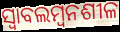
ସ୍ୱାବଲମ୍ୱନଶୀଳ